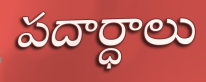
పదార్ధాలు